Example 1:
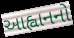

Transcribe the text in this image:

આહ્વાનનો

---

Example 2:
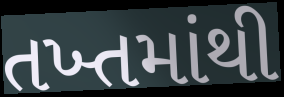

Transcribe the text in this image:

તખ્તમાંથી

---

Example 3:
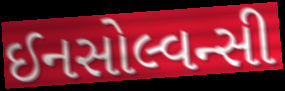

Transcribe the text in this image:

ઈનસોલ્વન્સી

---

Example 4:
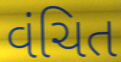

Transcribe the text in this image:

વંચિત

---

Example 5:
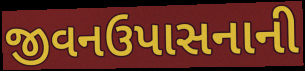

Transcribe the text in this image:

જીવનઉપાસનાની